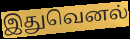
இதுவெனல்